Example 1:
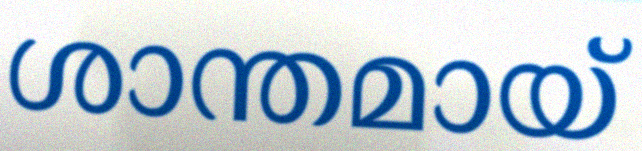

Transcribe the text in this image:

ശാന്തമായ്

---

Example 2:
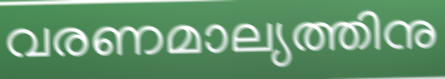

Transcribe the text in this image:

വരണമാല്യത്തിനു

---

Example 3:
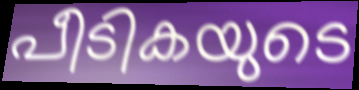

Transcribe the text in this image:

പീടികയുടെ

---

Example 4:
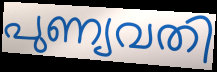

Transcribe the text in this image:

പുണ്യവതി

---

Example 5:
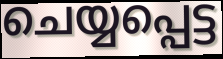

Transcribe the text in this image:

ചെയ്യപ്പെട്ട